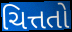
ચિત્તતો